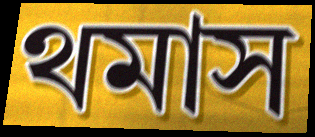
থমাস